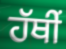
ਹੱਥੀਂ